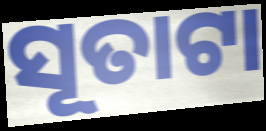
ସୂତାଟା